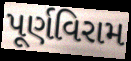
પૂર્ણવિરામ